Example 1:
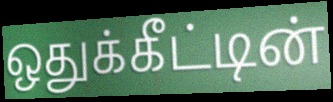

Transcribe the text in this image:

ஒதுக்கீட்டின்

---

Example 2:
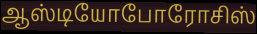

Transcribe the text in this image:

ஆஸ்டியோபோரோசிஸ்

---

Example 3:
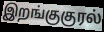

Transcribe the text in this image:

இறங்குகுரல்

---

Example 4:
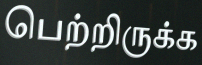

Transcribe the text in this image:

பெற்றிருக்க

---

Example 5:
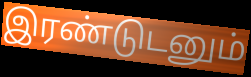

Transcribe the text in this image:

இரண்டுடனும்